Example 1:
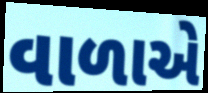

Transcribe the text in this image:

વાળાએ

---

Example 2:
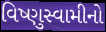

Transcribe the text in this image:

વિષ્ણુસ્વામીનો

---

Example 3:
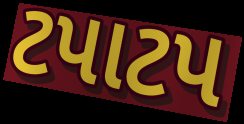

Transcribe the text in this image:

ટપાટપ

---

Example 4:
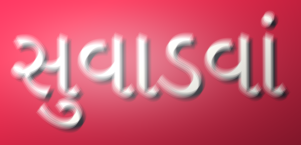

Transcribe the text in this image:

સુવાડવાં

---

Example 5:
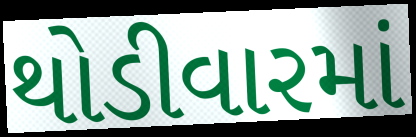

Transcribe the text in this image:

થોડીવારમાં